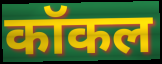
कॉकल